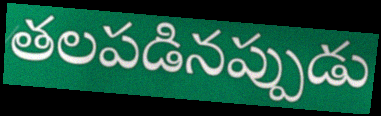
తలపడినప్పుడు